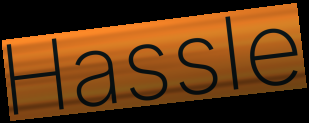
Hassle